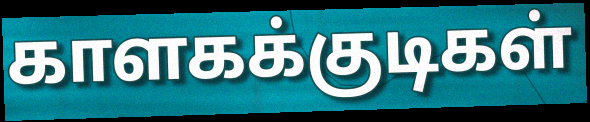
காளகக்குடிகள்